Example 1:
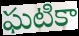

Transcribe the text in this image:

ఘటికా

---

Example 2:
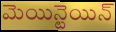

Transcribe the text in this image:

మెయిన్టెయిన్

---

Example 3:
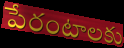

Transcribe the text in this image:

పేరంటాలకు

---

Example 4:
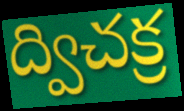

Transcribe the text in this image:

ద్విచక్ర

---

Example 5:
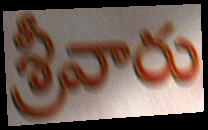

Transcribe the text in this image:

శ్రీవారు